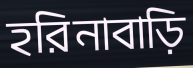
হরিনাবাড়ি